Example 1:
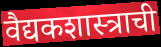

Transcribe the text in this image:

वैद्यकशास्त्राची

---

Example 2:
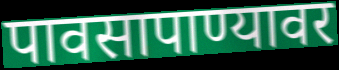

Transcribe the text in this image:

पावसापाण्यावर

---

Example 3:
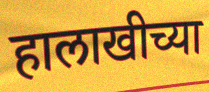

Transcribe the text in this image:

हालाखीच्या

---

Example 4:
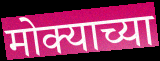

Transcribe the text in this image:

मोक्याच्या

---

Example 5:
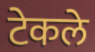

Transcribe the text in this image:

टेकले